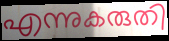
എന്നുകരുതി